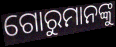
ଗୋରୁମାନଙ୍କୁ